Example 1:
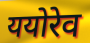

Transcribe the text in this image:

ययोरेव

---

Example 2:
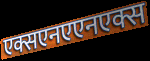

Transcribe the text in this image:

एक्सएनएएनएक्स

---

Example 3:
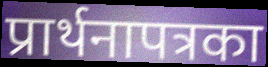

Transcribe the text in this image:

प्रार्थनापत्रका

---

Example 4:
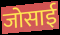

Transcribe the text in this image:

जोसाई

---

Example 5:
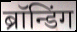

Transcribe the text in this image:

ब्रॉन्डिंग